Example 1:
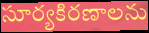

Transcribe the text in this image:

సూర్యకిరణాలను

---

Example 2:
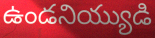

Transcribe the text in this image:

ఉండనియ్యుడి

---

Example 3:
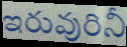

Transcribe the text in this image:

ఇరువురినీ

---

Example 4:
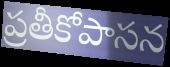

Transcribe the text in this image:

ప్రతీకోపాసన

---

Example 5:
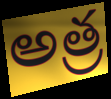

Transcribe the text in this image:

అత్ర